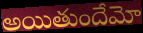
అయితుందేమో